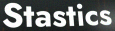
Stastics